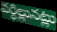
వర్ధిల్లునట్లు